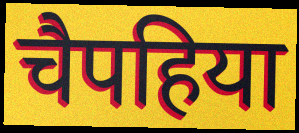
चैपहिया